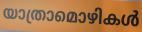
യാത്രാമൊഴികൾ